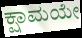
ಕ್ಷಾಮಯೇ